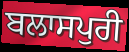
ਬਲਾਸਪੁਰੀ